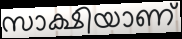
സാക്ഷിയാണ്